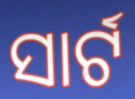
ସାର୍ଟ